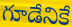
గూడేనికే